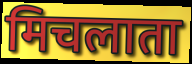
मिचलाता